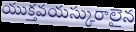
యుక్తవయస్కురాలైన